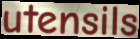
utensils